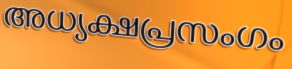
അധ്യക്ഷപ്രസംഗം